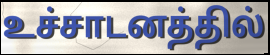
உச்சாடனத்தில்